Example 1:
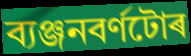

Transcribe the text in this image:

ব্যঞ্জনবৰ্ণটোৰ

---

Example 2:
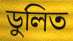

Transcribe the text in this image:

ডুলিত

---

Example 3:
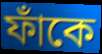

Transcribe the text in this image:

ফাঁকে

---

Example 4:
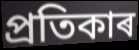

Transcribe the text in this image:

প্ৰতিকাৰ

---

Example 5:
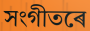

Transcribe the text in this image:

সংগীতৰে